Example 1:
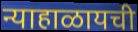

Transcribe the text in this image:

न्याहाळायची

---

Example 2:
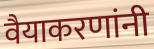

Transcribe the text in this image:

वैयाकरणांनी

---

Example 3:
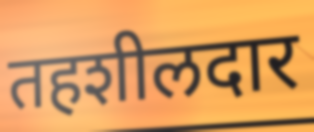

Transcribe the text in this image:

तहशीलदार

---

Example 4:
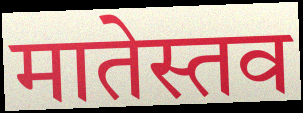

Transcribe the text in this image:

मातेस्तव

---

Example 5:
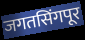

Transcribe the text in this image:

जगतसिंगपूर